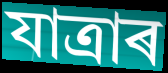
যাত্ৰাৰ